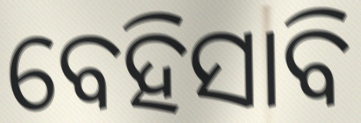
ବେହିସାବି